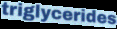
triglycerides